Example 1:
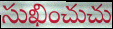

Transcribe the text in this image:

సుఖించుచు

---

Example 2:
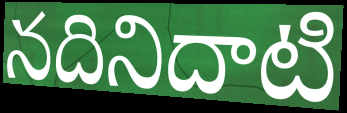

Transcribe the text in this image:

నదినిదాటి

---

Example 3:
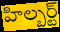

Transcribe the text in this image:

హిల్బర్ట్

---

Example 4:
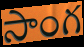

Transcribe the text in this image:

సాంగ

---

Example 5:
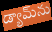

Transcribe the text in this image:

డ్యామ్‌ను